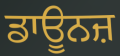
ਡਾਊਨਜ਼